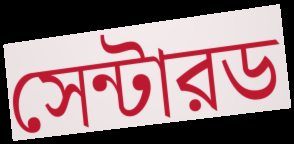
সেন্টারড